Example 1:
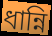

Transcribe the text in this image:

ধান্নি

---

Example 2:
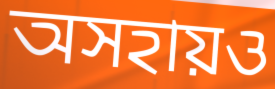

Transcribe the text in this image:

অসহায়ও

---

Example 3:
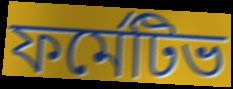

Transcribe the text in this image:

ফর্মেটিভ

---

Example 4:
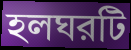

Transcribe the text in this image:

হলঘরটি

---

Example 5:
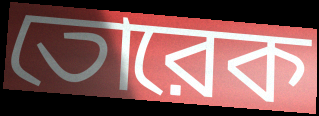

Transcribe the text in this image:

তোরেক